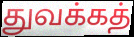
துவக்கத்